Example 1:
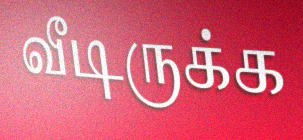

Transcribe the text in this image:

வீடிருக்க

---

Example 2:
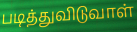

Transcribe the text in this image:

படித்துவிடுவாள்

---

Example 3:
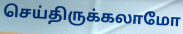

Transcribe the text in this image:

செய்திருக்கலாமோ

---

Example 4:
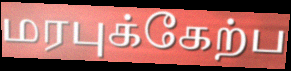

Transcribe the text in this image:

மரபுக்கேற்ப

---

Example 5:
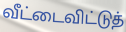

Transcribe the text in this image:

வீட்டைவிட்டுத்